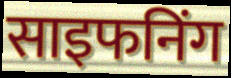
साइफनिंग